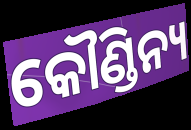
କୌଣ୍ଡିନ୍ୟ